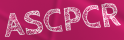
ASCPCR